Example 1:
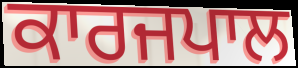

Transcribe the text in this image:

ਕਾਰਜਪਾਲ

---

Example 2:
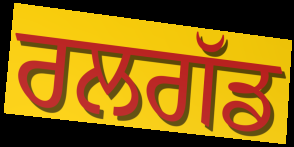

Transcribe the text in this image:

ਰਲਗੱਡ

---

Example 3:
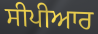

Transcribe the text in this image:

ਸੀਪੀਆਰ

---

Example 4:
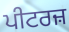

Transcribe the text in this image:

ਪੀਟਰਜ਼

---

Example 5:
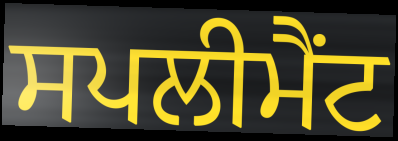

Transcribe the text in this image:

ਸਪਲੀਮੈਂਟ